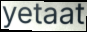
yetaat